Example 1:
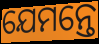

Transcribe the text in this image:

ଯେମନ୍ତେ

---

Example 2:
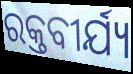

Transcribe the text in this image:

ରକ୍ତବୀର୍ଯ୍ୟ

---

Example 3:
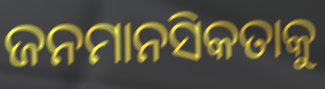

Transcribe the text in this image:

ଜନମାନସିକତାକୁ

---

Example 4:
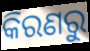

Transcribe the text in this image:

କିରଣରୁ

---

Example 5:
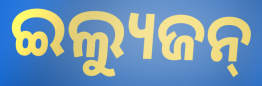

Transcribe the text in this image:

ଇଲ୍ୟୁଜନ୍